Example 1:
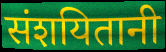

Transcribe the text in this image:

संशयितानी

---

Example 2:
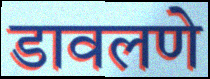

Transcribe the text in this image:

डावलणे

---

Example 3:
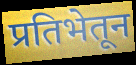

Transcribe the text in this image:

प्रतिभेतून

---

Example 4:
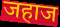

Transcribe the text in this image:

जहाज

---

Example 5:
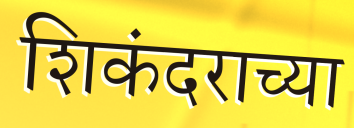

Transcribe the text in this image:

शिकंदराच्या